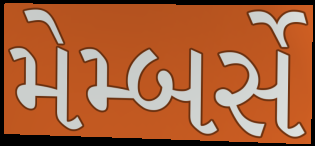
મેમ્બર્સે